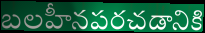
బలహీనపరచడానికి